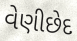
વેણીછેદ